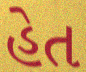
હેત